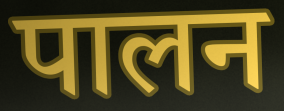
पालन